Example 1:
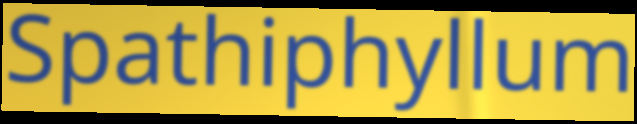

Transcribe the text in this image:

Spathiphyllum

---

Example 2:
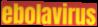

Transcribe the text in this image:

ebolavirus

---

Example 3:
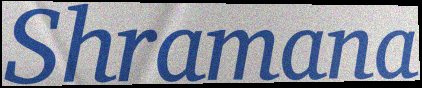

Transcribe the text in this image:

Shramana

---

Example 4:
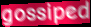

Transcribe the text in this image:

gossiped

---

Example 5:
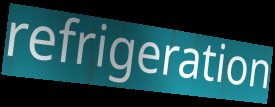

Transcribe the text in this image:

refrigeration